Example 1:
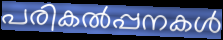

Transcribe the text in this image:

പരികൽപ്പനകൾ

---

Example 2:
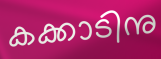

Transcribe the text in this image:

കക്കാടിനു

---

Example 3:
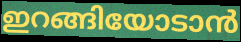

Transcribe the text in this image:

ഇറങ്ങിയോടാൻ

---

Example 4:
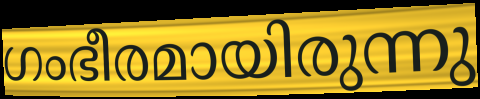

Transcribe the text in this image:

ഗംഭീരമായിരുന്നു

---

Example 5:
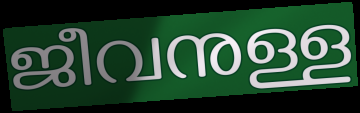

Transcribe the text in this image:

ജീവനുള്ള